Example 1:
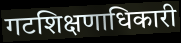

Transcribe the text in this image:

गटशिक्षणाधिकारी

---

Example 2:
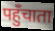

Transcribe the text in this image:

पहुँचाता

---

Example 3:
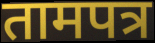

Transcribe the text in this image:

तामपत्र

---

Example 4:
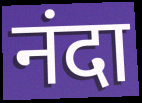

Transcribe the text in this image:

नंदा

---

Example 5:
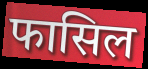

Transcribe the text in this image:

फासिल